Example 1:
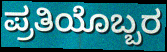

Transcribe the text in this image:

ಪ್ರತಿಯೊಬ್ಬರ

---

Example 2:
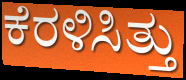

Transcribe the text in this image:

ಕೆರಳಿಸಿತ್ತು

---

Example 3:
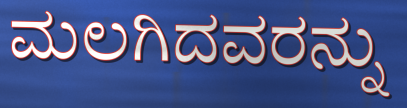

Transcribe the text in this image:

ಮಲಗಿದವರನ್ನು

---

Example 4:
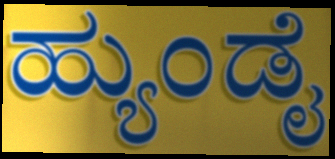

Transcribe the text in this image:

ಹ್ಯುಂಡೈ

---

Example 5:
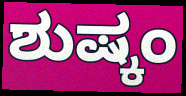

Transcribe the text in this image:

ಶುಷ್ಕಂ